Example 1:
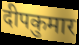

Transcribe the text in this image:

दीपकुमार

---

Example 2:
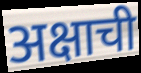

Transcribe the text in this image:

अक्षाची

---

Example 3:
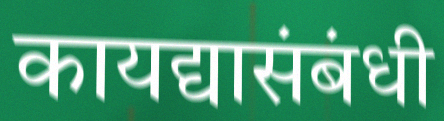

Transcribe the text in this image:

कायद्यासंबंधी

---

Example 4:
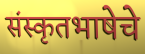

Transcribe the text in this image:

संस्कृतभाषेचे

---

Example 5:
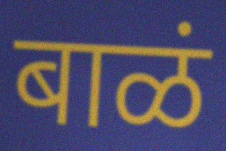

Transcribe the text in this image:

बाळं